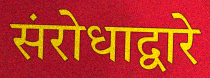
संरोधाद्वारे